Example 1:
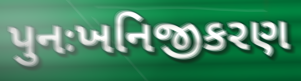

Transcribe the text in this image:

પુનઃખનિજીકરણ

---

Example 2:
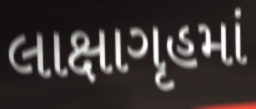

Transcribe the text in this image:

લાક્ષાગૃહમાં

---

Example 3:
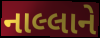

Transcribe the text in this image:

નાલ્લાને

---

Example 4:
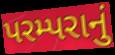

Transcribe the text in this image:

પરમ્પરાનું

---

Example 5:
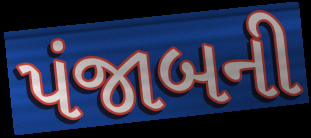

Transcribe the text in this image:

પંજાબની